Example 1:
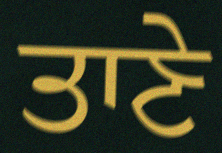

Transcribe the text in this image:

ਤਾਣੇ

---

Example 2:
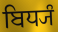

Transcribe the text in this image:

ਬਿਧ੍ਯੰ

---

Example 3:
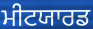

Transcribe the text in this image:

ਮੀਟਯਾਰਡ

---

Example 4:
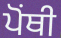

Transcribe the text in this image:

ਪੋਂਥੀ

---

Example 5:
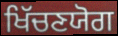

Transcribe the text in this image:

ਖਿੱਚਣਯੋਗ